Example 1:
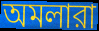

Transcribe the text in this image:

অমলারা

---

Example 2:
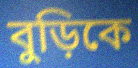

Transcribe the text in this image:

বুড়িকে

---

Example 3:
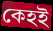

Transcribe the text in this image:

কেহই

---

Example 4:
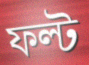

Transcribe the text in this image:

ফল্ট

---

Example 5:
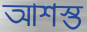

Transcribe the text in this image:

আশস্ত